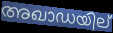
അഖാഡയില്